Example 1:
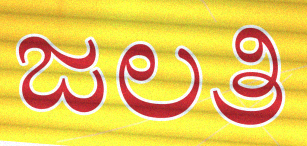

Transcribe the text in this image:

ಜಲತಿ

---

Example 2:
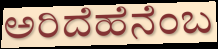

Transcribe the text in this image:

ಅರಿದೆಹೆನೆಂಬ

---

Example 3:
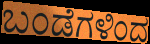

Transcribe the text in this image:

ಬಂಡೆಗಳಿಂದ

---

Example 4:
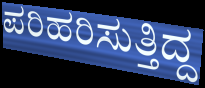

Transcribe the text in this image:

ಪರಿಹರಿಸುತ್ತಿದ್ದ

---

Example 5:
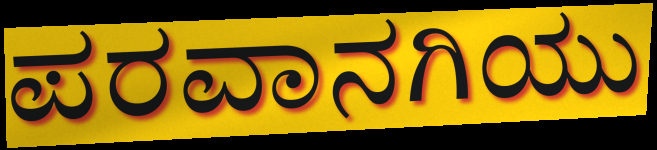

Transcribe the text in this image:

ಪರವಾನಗಿಯು